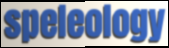
speleology